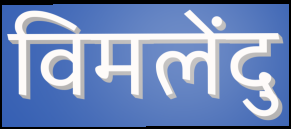
विमलेंदु